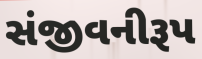
સંજીવનીરૂપ